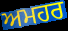
ਅਮਹਰ